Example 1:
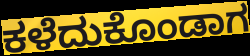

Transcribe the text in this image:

ಕಳೆದುಕೊಂಡಾಗ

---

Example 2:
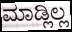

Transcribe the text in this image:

ಮಾಡ್ಲಿಲ್ಲ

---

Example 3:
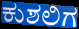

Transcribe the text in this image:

ಕುಶಲಿಗ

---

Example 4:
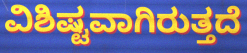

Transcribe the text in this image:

ವಿಶಿಷ್ಟವಾಗಿರುತ್ತದೆ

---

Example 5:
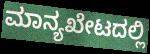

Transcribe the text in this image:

ಮಾನ್ಯಖೇಟದಲ್ಲಿ